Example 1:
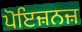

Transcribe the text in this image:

ਪੋਇਜ਼ਨਜ਼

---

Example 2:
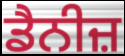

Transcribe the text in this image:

ਡੈਨੀਜ਼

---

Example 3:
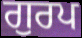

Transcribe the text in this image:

ਗੁਰਪ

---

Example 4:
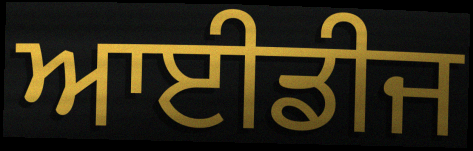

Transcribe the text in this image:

ਆਈਡੀਜ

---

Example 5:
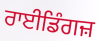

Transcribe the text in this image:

ਰਾਈਡਿੰਗਜ਼